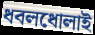
ধবলধোলাই